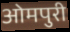
ओमपुरी